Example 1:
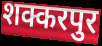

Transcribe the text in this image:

शक्करपुर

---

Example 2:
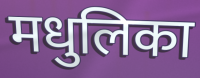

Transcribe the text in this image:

मधुलिका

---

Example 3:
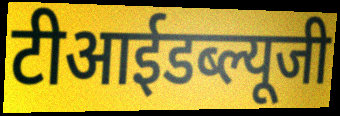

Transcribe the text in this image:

टीआईडब्ल्यूजी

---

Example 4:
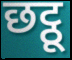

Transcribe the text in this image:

छट्ठू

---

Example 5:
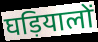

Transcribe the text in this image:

घड़ियालों